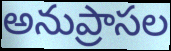
అనుప్రాసల